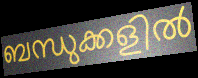
ബന്ധുക്കളിൽ